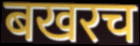
बखरच